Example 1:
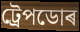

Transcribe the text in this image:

ট্ৰেপডোৰ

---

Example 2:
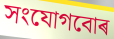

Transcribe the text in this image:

সংযোগবোৰ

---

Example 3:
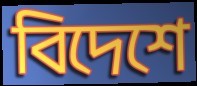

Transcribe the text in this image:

বিদেশে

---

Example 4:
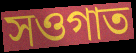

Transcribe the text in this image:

সওগাত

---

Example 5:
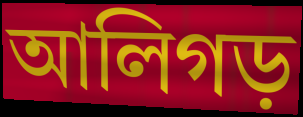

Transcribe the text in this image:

আলিগড়